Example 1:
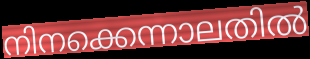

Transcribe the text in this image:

നിനക്കെന്നാലതിൽ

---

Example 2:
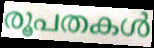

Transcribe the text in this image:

രൂപതകൾ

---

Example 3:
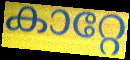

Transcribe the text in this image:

കാറ്റേ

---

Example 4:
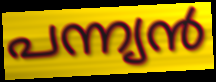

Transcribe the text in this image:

പന്ന്യൻ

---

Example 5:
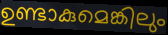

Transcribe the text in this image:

ഉണ്ടാകുമെങ്കിലും